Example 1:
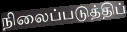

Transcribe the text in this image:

நிலைப்படுத்திப்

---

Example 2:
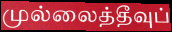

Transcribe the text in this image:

முல்லைத்தீவுப்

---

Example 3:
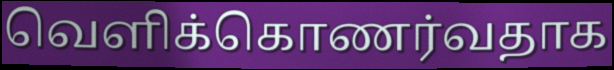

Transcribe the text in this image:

வெளிக்கொணர்வதாக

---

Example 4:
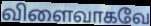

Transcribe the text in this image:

விளைவாகவே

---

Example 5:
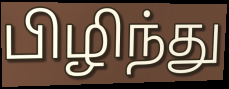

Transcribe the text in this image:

பிழிந்து